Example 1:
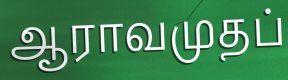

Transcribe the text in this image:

ஆராவமுதப்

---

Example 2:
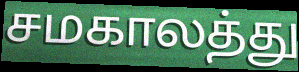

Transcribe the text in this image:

சமகாலத்து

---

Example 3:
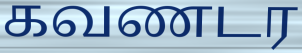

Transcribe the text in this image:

கவணடர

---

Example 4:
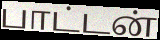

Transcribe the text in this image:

பாட்டன்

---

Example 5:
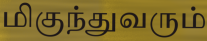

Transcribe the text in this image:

மிகுந்துவரும்